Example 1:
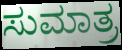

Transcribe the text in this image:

ಸುಮಾತ್ರ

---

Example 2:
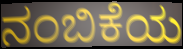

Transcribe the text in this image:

ನಂಬಿಕೆಯ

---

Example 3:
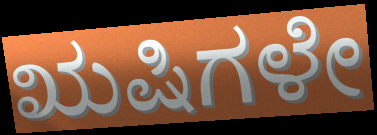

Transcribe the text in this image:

ಋಷಿಗಳೇ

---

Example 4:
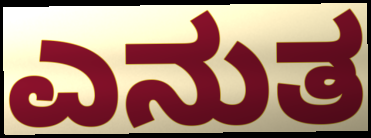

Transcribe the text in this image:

ಎನುತ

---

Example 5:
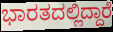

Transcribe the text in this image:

ಭಾರತದಲ್ಲಿದ್ದಾರೆ